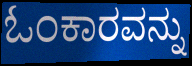
ಓಂಕಾರವನ್ನು